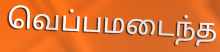
வெப்பமடைந்த